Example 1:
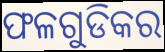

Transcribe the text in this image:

ଫଳଗୁଡିକର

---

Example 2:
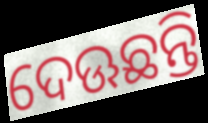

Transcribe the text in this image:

ଦେଊଛନ୍ତି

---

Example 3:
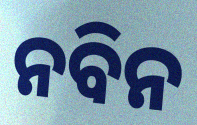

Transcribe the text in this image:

ନବିନ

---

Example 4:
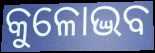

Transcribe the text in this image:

କୁଳୋଦ୍ଭବ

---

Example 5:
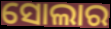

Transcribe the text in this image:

ସୋଲାର